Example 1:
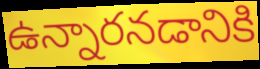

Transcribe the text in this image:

ఉన్నారనడానికి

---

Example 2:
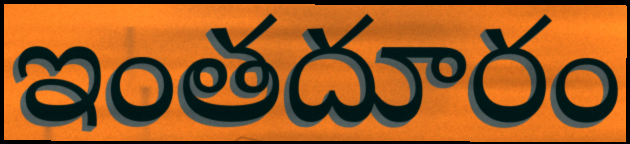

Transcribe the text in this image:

ఇంతదూరం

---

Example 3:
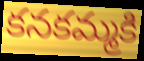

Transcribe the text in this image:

కనకమ్మకి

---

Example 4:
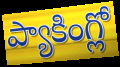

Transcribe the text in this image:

ప్యాకింగ్లో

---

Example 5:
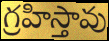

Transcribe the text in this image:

గ్రహిస్తావు